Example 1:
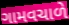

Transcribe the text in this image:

ગામવચાળે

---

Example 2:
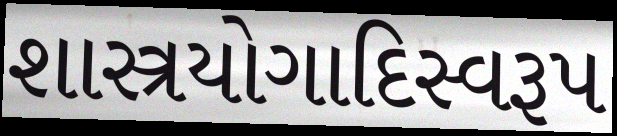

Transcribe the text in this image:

શાસ્ત્રયોગાદિસ્વરૂપ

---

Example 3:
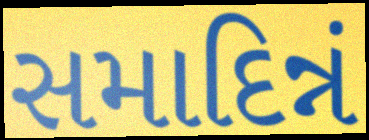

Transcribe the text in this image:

સમાદિન્નં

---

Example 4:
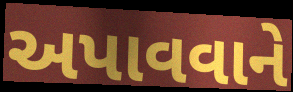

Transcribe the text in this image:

અપાવવાને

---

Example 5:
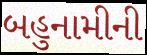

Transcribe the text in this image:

બહુનામીની